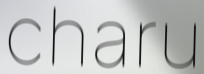
charu